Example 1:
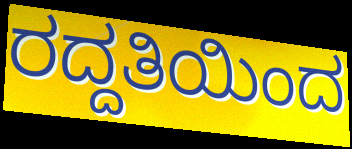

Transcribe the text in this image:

ರದ್ದತಿಯಿಂದ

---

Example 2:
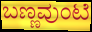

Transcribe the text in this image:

ಬಣ್ಣವುಂಟೆ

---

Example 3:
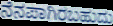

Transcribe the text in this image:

ನೆನಪಾಗಿರಬಹುದು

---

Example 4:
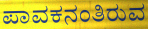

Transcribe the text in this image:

ಪಾವಕನಂತಿರುವ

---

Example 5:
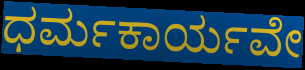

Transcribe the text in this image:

ಧರ್ಮಕಾರ್ಯವೇ